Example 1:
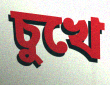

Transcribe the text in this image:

চুখে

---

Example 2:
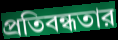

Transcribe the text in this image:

প্রতিবন্ধতার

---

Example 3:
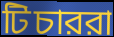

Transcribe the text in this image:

টিচাররা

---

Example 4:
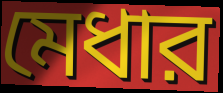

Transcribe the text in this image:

মেধার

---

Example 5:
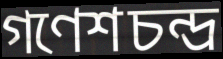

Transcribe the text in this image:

গণেশচন্দ্র